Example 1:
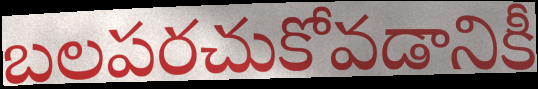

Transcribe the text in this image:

బలపరచుకోవడానికీ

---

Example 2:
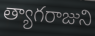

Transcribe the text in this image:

త్యాగరాజుని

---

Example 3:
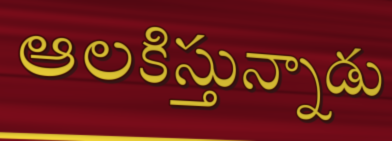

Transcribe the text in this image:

ఆలకిస్తున్నాడు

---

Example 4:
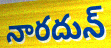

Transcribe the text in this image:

నారదున్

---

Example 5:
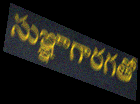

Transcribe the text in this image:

సుఞ్ఞాగారగతో